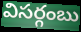
విసర్గంబు